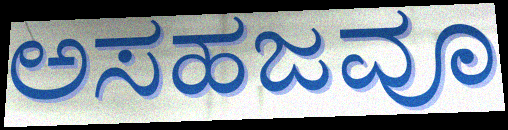
ಅಸಹಜವೂ